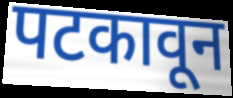
पटकावून